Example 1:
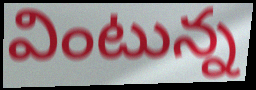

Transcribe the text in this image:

వింటున్న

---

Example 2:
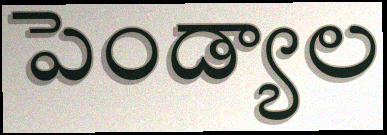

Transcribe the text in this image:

పెండ్యాల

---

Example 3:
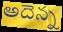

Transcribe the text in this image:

అదెన్న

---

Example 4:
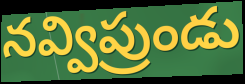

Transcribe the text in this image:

నవ్విప్రుండు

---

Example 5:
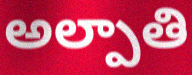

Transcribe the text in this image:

అల్పాతి